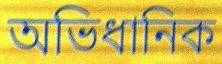
অভিধানিক